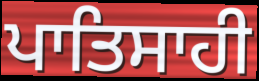
ਪਾਤਿਸਾਹੀ